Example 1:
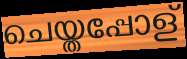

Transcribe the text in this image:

ചെയ്തപ്പോള്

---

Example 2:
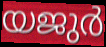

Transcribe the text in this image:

യജുർ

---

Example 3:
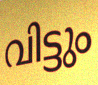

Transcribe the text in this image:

വിട്ടും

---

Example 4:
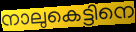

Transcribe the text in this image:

നാലുകെട്ടിനെ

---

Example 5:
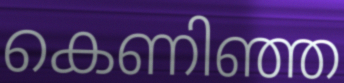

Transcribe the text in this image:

കെണിഞ്ഞ